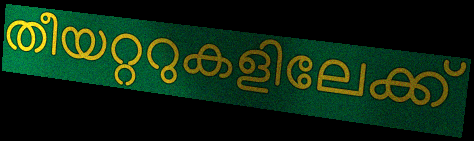
തീയറ്ററുകളിലേക്ക്